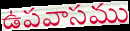
ఉపవాసము